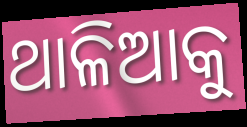
ଥାଳିଆକୁ